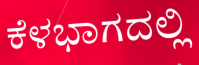
ಕೆಳಭಾಗದಲ್ಲಿ